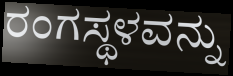
ರಂಗಸ್ಥಳವನ್ನು